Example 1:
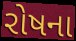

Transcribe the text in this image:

રોષના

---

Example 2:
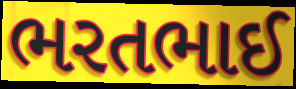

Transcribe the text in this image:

ભરતભાઈ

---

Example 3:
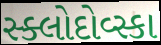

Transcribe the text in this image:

સ્ક્લોદોવ્સ્કા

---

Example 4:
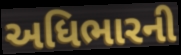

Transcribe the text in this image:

અધિભારની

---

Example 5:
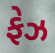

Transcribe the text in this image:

ફેઝ